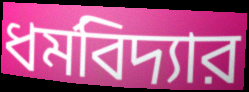
ধর্মবিদ্যার